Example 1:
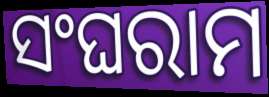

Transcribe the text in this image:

ସଂଘରାମ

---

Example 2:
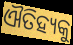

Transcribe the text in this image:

ଐତିହ୍ୟକୁ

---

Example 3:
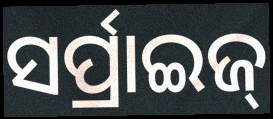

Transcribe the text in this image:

ସର୍ପ୍ରାଇଜ୍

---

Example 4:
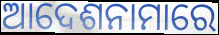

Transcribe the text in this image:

ଆଦେଶନାମାରେ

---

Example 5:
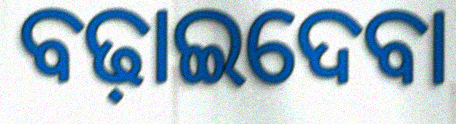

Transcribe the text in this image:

ବଢ଼ାଇଦେବା